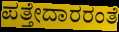
ಪತ್ತೇದಾರರಂತೆ